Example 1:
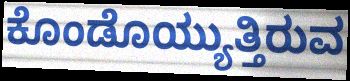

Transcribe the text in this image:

ಕೊಂಡೊಯ್ಯುತ್ತಿರುವ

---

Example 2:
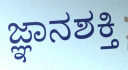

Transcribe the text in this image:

ಜ್ಞಾನಶಕ್ತಿ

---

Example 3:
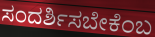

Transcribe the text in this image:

ಸಂದರ್ಶಿಸಬೇಕೆಂಬ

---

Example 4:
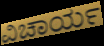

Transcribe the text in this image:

ವಿಚಾರ್ಯ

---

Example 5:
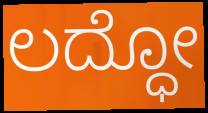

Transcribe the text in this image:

ಲದ್ಧೋ